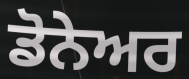
ਡੋਨੇਅਰ